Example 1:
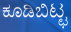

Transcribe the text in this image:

ಕೂಡಿಬಿಟ್ಟ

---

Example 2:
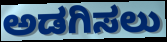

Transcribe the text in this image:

ಅಡಗಿಸಲು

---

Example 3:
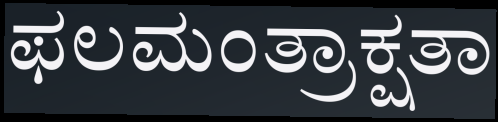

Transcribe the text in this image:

ಫಲಮಂತ್ರಾಕ್ಷತಾ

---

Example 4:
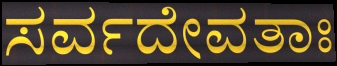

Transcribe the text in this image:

ಸರ್ವದೇವತಾಃ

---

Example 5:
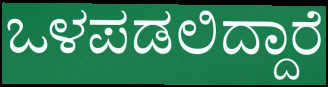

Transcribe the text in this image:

ಒಳಪಡಲಿದ್ದಾರೆ